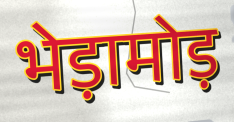
भेड़ामोड़